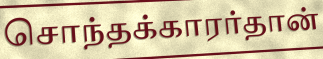
சொந்தக்காரர்தான்